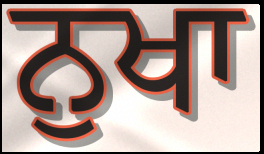
ਨੁਖਾ